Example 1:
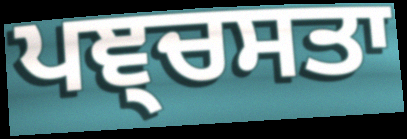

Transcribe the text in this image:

ਪਞ੍ਚਸਤਾ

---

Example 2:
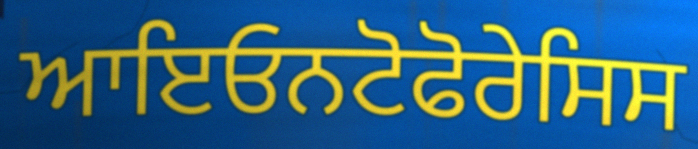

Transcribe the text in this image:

ਆਇਓਨਟੋਫੋਰੇਸਿਸ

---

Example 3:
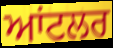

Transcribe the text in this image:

ਆਂਟਲਰ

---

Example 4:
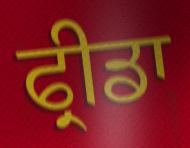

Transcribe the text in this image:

ਫ੍ਰੀਡਾ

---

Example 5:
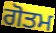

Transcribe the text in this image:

ਗੋਤਮ